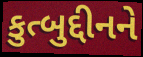
કુત્બુદ્દીનને